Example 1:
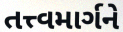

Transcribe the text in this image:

તત્ત્વમાર્ગને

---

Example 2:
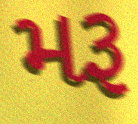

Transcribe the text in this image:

મરૂ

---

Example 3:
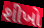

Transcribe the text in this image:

શીખો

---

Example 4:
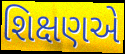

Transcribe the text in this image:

શિક્ષણએ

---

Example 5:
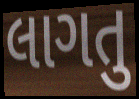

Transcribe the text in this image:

લાગતુ